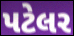
પટેલર